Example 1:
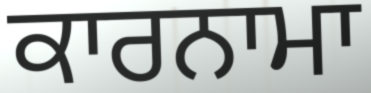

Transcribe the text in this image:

ਕਾਰਨਾਮਾ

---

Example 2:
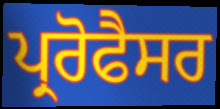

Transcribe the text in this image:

ਪ੍ਰਰੋਫੈਸਰ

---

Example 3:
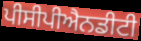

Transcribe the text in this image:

ਪੀਸੀਪੀਐਨਡੀਟੀ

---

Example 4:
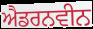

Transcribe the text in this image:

ਐਡਰਨਵੀਨ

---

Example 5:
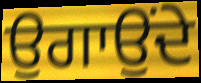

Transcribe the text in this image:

ਉਗਾਉਂਦੇ